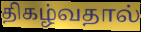
திகழ்வதால்